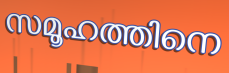
സമൂഹത്തിനെ